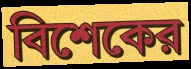
বিশেকের